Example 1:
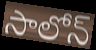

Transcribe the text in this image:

సాలోన్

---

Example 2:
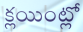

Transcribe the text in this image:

క్లయింట్లో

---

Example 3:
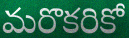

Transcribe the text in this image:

మరొకరికో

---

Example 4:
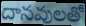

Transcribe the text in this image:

దానవులతో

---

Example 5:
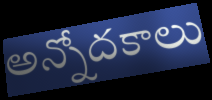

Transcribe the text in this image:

అన్నోదకాలు